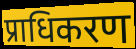
प्राधिकरण